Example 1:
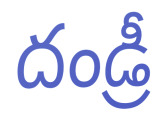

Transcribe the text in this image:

దండ్రీ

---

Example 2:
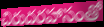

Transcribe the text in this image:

చిరుదరహాసంతో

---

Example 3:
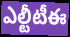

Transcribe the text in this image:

ఎల్టీటీఈ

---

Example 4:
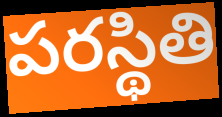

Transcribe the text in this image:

పరస్థితి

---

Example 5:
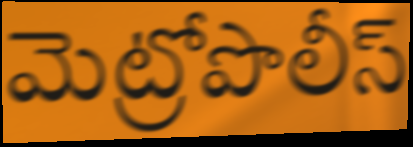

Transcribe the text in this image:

మెట్రోపొలీస్